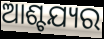
ଆଶ୍ଚଯ୍ୟର